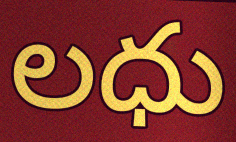
లధు